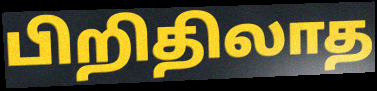
பிறிதிலாத